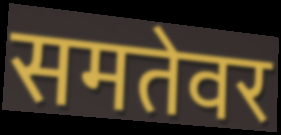
समतेवर